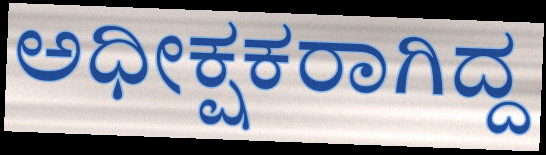
ಅಧೀಕ್ಷಕರಾಗಿದ್ದ